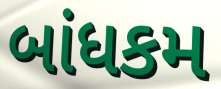
બાંધકમ